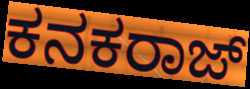
ಕನಕರಾಜ್